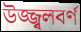
উজ্জ্বলবর্ণ